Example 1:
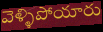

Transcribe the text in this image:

వెళ్ళిపోయారు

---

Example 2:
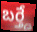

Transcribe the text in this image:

బర్త్డే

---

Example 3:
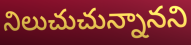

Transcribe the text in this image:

నిలుచుచున్నానని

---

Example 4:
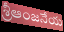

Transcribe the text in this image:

శ్రీఆంజనేయ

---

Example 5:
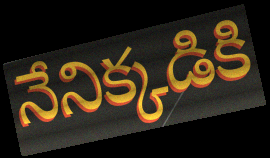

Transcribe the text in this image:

నేనిక్కడికి